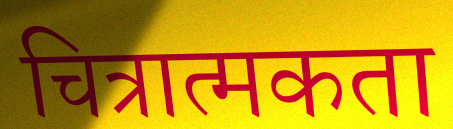
चित्रात्मकता